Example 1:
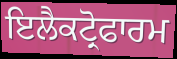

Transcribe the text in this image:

ਇਲੈਕਟ੍ਰੋਫਾਰਮ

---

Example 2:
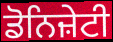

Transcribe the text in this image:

ਡੋਨਿਜ਼ੇਟੀ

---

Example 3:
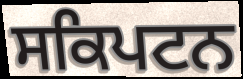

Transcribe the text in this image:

ਸਕਿਪਟਨ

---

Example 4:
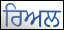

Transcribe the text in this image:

ਰਿਅਲ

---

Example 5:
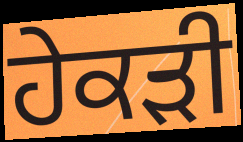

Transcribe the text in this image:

ਹੇਕੜੀ